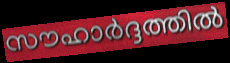
സൗഹാർദ്ദത്തിൽ